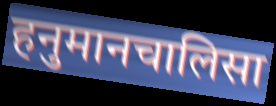
हनुमानचालिसा